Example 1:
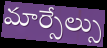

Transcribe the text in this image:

మార్సేల్సు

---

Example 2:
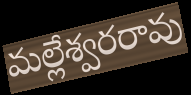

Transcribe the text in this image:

మల్లేశ్వరరావు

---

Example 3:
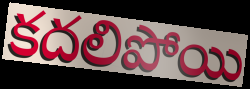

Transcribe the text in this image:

కదలిపోయి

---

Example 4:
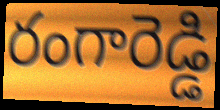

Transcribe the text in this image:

రంగారెడ్డి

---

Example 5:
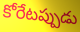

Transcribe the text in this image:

కోరేటప్పుడు